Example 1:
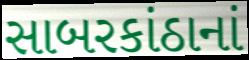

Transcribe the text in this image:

સાબરકાંઠાનાં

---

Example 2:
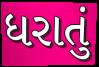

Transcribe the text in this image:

ધરાતું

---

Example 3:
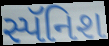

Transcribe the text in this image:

સ્પૅનિશ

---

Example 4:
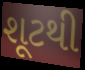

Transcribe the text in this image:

શૂટથી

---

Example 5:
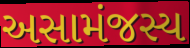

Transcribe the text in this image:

અસામંજસ્ય